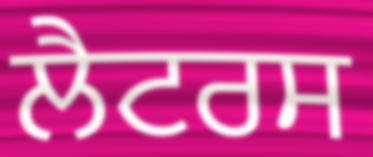
ਲੈਟਰਸ